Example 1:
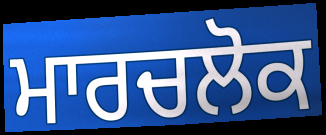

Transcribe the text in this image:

ਮਾਰਚਲੋਕ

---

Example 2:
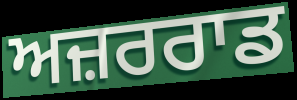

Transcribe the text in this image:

ਅਜ਼ਰਰਾਡ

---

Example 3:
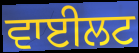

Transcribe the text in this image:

ਵਾਈਲਟ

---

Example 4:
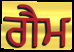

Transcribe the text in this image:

ਗੈਮ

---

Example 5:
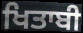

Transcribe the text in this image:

ਖਿਤਾਬੀ